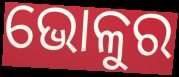
ଭୋଳୁର